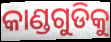
କାଣ୍ଡଗୁଡିକୁ